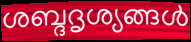
ശബ്ദദൃശ്യങ്ങൾ